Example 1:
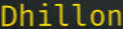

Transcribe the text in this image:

Dhillon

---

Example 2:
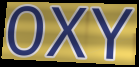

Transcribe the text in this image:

OXY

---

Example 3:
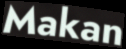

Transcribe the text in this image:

Makan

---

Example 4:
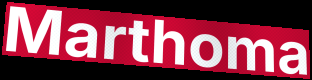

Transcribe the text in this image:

Marthoma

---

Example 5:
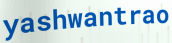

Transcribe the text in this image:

yashwantrao